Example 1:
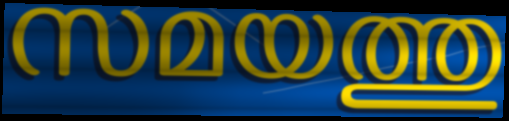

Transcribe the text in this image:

സമയത്തു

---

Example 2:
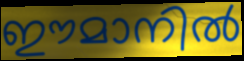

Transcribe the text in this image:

ഈമാനിൽ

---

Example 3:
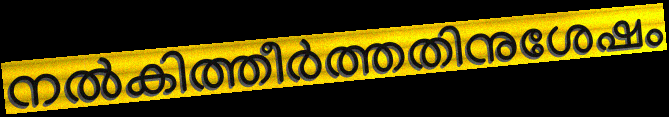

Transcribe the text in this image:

നൽകിത്തീർത്തതിനുശേഷം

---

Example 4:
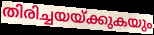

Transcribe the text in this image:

തിരിച്ചയയ്ക്കുകയും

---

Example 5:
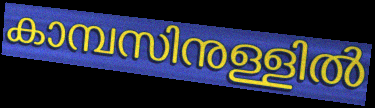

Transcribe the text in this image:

കാമ്പസിനുള്ളിൽ